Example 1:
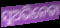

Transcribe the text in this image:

ସୁଅଭିନେତା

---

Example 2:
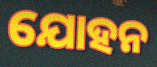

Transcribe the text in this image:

ଯୋହନ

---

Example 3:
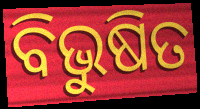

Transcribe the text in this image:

ବିଭୁଷିତ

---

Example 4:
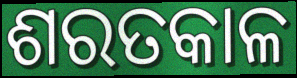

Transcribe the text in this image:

ଶରତକାଳ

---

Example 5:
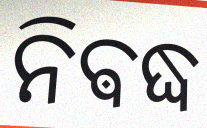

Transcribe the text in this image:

ନିଵଦ୍ଧ